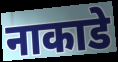
नाकाडे